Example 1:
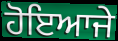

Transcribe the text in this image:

ਹੋਇਆਜੇ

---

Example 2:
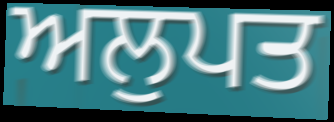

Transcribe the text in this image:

ਅਲੁਪਤ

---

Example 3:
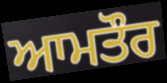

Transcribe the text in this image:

ਆਮਤੌਰ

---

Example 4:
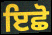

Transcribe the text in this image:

ਇਛੋ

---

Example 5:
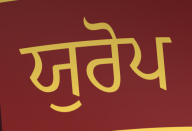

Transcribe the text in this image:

ਯੁਰੋਪ